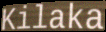
Kilaka